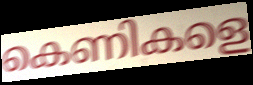
കെണികളെ